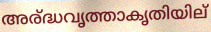
അര്ദ്ധവൃത്താകൃതിയില്